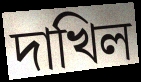
দাখিল